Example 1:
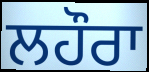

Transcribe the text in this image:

ਲਹੌਰਾ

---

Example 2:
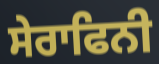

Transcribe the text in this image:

ਸੇਰਾਫਿਨੀ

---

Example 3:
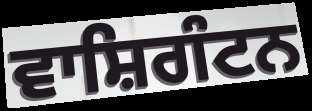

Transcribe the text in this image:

ਵਾਸ਼ਿਗੰਟਨ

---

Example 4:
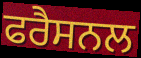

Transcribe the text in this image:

ਫਰੈਸਨਲ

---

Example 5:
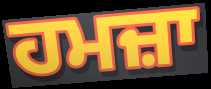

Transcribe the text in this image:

ਹਮਜ਼ਾ